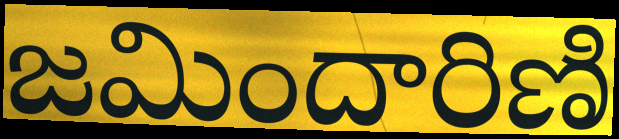
జమిందారిణి